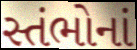
સ્તંભોનાં